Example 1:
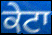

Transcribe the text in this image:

ਕੇਟਾ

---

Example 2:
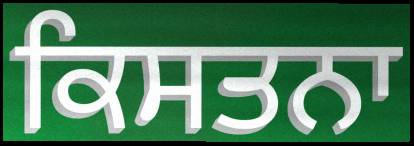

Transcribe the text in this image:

ਕਿਸਤਨਾ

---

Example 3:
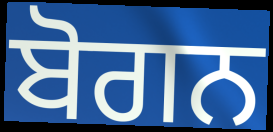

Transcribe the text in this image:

ਬੋਗਨ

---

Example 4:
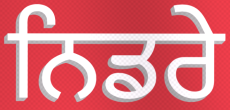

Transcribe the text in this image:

ਨਿਡਰੇ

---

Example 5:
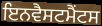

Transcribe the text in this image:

ਇਨਵੈਸਟਮੈਂਟਸ